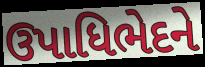
ઉપાધિભેદને